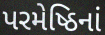
પરમેષ્ઠિનાં